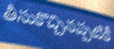
తీసుకొచ్చినప్పటికీ